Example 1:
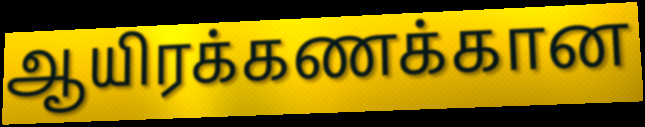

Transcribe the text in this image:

ஆயிரக்கணக்கான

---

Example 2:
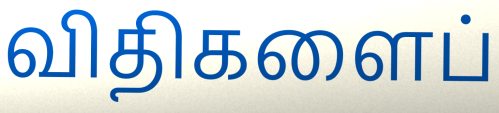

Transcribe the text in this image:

விதிகளைப்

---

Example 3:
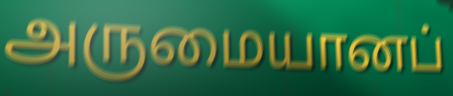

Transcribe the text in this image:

அருமையானப்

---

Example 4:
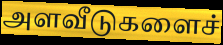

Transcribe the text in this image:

அளவீடுகளைச்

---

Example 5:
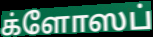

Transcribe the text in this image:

க்ளோஸப்